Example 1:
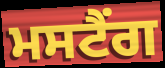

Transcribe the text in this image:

ਮਸਟੈਂਗ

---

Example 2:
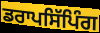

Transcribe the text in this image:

ਡਰਾਪਸਿੱਪਿੰਗ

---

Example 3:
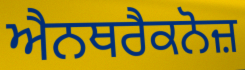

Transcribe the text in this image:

ਐਨਥਰੈਕਨੋਜ਼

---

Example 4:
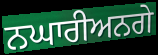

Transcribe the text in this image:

ਨਘਾਰੀਅਨਗੇ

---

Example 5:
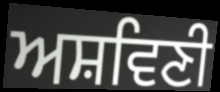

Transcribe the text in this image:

ਅਸ਼ਵਿਣੀ